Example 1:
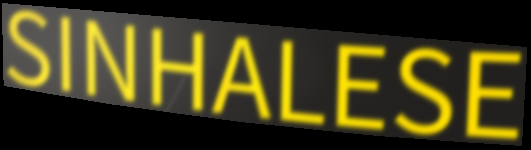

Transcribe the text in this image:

SINHALESE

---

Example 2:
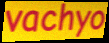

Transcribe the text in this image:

vachyo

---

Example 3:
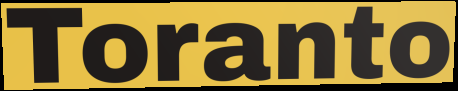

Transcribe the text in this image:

Toranto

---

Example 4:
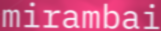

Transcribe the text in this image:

mirambai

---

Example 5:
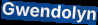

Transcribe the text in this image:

Gwendolyn